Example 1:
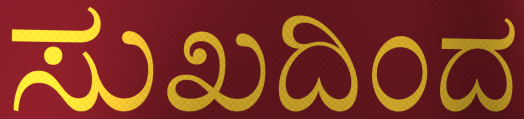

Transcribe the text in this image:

ಸುಖದಿಂದ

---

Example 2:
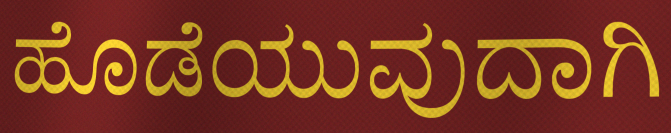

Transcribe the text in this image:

ಹೊಡೆಯುವುದಾಗಿ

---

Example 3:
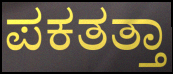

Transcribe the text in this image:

ಪಕತತ್ತಾ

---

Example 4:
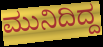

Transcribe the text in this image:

ಮುನಿದಿದ್ದ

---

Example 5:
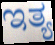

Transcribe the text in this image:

ಇತ್ಯ